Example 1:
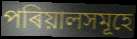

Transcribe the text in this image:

পৰিয়ালসমূহে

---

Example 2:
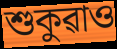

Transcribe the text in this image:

শুকুৱাও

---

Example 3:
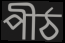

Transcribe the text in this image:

পীঠ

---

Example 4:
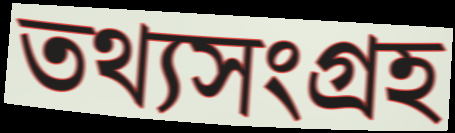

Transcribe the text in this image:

তথ্যসংগ্ৰহ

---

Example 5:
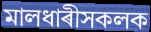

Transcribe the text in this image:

মালধাৰীসকলক